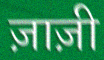
ज़ाज़ी